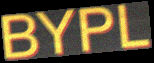
BYPL